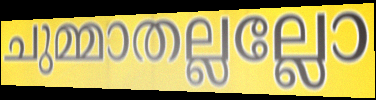
ചുമ്മാതല്ലല്ലോ